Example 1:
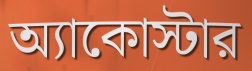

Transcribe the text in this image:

অ্যাকোস্টার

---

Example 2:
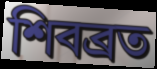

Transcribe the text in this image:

শিবব্রত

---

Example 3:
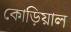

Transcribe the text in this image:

কোড়িয়াল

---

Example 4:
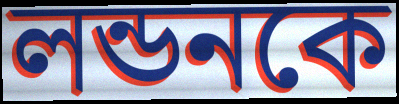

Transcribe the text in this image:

লন্ডনকে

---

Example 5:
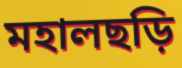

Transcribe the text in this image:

মহালছড়ি